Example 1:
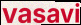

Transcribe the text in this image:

vasavi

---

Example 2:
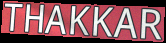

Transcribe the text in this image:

THAKKAR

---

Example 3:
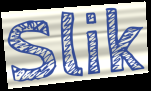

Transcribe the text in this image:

Slik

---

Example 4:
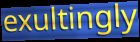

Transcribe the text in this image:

exultingly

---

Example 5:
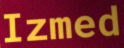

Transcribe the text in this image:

Izmed